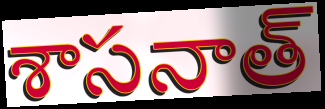
శాసనాత్